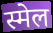
स्‍मेल